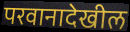
परवानादेखील